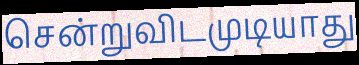
சென்றுவிடமுடியாது